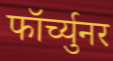
फॉर्च्युनर